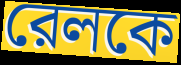
রেলকে